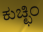
ಕುಚ್ಛಿಂ